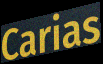
Carias